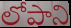
లోపాని